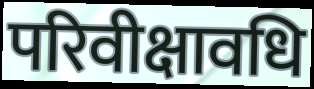
परिवीक्षावधि